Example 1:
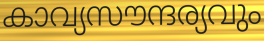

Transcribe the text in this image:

കാവ്യസൗന്ദര്യവും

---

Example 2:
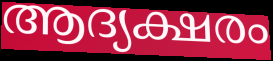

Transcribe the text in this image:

ആദ്യക്ഷരം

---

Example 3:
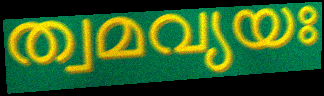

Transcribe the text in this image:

ത്വമവ്യയഃ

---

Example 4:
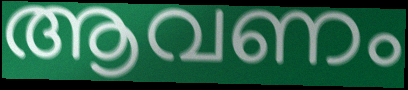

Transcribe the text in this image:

ആവണം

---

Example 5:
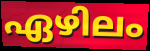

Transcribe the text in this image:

ഏഴിലം